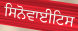
ਸਿਨੋਵਾਈਟਿਸ